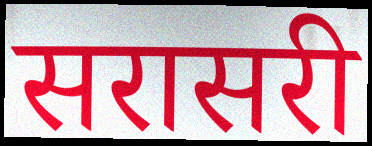
सरासरी